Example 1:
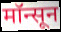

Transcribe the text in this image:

मॉन्सून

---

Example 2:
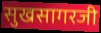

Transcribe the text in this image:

सुखसागरजी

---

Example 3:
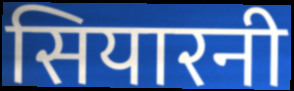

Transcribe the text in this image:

सियारनी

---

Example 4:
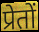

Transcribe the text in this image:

प्रेतों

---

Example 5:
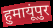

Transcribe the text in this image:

हुमायूंपुर